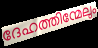
ദേഹത്തിന്മേലും